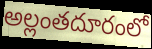
అల్లంతదూరంలో